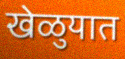
खेळुयात